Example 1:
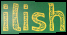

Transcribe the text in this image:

ilish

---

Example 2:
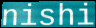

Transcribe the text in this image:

nishi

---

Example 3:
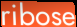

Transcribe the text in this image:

ribose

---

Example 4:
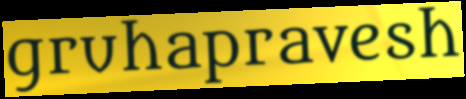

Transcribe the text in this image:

gruhapravesh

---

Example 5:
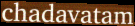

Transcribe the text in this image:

chadavatam